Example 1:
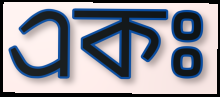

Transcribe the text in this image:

একঃ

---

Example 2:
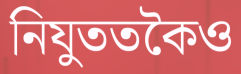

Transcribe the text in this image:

নিযুততকৈও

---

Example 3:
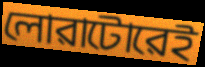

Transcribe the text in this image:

লোৱাটোৱেই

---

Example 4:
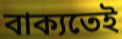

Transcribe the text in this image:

বাক্যতেই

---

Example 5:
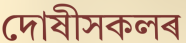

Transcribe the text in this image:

দোষীসকলৰ